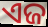
ଏଜ